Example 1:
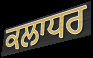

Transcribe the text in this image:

ਕਲਾਧਰ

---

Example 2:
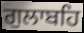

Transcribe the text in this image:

ਗੁਲਾਬਹਿ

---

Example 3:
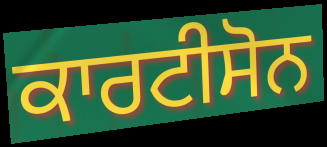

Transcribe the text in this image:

ਕਾਰਟੀਸੋਨ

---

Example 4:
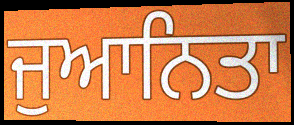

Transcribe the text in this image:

ਜੁਆਨਿਤਾ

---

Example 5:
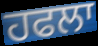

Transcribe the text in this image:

ਹਫਲਾ